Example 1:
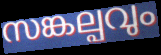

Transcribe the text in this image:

സങ്കല്പവും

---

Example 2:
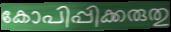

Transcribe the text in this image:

കോപിപ്പിക്കരുതു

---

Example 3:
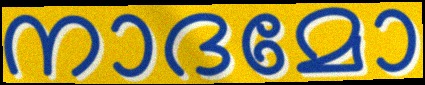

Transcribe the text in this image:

നാദമോ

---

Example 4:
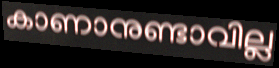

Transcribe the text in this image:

കാണാനുണ്ടാവില്ല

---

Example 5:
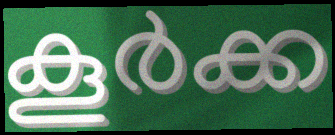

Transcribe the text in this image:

കൂർക്ക